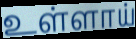
உள்ளாய்